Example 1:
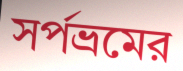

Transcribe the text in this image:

সর্পভ্রমের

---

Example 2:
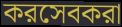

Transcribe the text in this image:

করসেবকরা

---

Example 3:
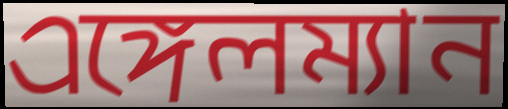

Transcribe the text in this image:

এঙ্গেলম্যান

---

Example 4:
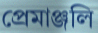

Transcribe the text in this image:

প্রেমাঞ্জলি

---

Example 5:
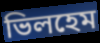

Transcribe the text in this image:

ভিলহেম